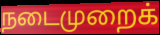
நடைமுறைக்